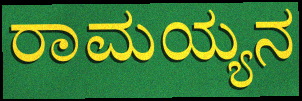
ರಾಮಯ್ಯನ